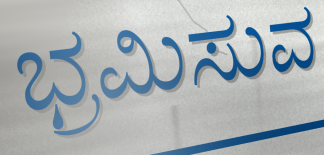
ಭ್ರಮಿಸುವ